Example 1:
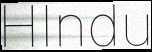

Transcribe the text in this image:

HIndu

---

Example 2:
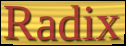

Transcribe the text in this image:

Radix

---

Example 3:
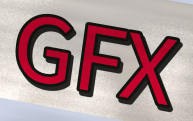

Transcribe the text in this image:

GFX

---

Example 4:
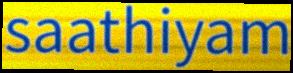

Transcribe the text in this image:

saathiyam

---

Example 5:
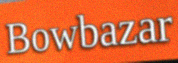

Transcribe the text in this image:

Bowbazar